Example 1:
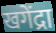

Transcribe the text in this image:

खगेंद्रा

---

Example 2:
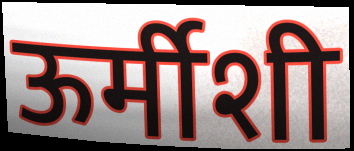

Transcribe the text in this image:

ऊर्मीशी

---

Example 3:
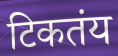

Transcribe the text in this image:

टिकतंय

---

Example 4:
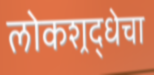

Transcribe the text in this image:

लोकश्रद्धेचा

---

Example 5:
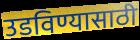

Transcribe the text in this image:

उडविण्यासाठी